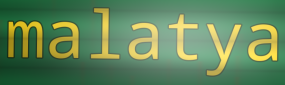
malatya